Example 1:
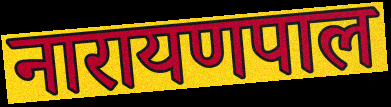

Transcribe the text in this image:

नारायणपाल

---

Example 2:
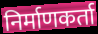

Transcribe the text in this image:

निर्माणकर्ता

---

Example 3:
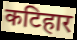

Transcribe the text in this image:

कटिहार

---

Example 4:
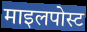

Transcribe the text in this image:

माइलपोस्ट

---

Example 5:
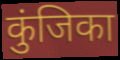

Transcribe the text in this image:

कुंजिका